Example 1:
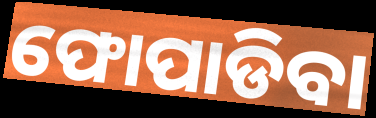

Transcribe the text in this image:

ଫୋପାଡିବା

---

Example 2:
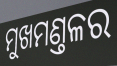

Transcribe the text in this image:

ମୁଖମଣ୍ତଳର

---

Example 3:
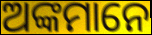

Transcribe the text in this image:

ଅଙ୍କମାନେ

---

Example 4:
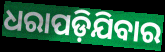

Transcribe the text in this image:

ଧରାପଡ଼ିଯିବାର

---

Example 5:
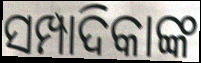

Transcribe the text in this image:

ସମ୍ପାଦିକାଙ୍କ